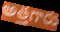
అత్తగారు